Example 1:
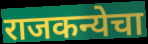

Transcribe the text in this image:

राजकन्येचा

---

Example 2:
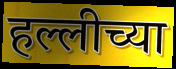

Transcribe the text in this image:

हल्लीच्या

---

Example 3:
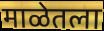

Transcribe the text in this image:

माळेतला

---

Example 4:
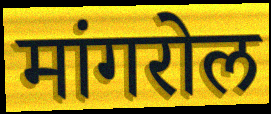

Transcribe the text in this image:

मांगरोल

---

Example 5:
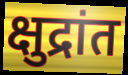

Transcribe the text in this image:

क्षुद्रांत